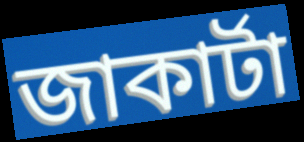
জাকাৰ্টা